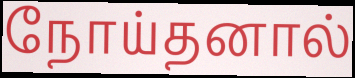
நோய்தனால்